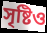
সৃষ্টিও